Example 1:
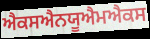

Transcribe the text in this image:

ਐਕਸਐਨਯੂਐਮਐਕਸ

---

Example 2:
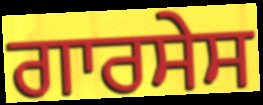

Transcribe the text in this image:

ਗਾਰਸੇਸ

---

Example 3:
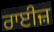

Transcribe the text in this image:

ਰਾਈਜ਼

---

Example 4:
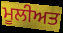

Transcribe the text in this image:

ਮੂਲੀਅਤ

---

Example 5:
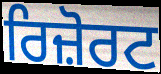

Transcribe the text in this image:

ਰਿਜ਼ੋਰਟ